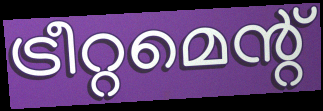
ട്രീറ്റമെന്റ്